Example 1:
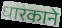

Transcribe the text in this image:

धारकाने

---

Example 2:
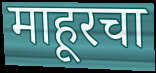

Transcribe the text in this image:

माहूरचा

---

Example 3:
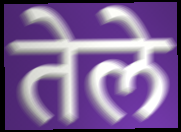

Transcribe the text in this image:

तेले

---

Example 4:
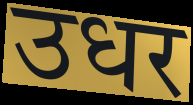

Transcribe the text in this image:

उधर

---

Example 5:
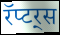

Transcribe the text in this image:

रॅप्टर्स